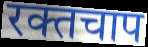
रक्तचाप